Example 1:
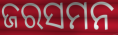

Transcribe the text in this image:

ଜରସମନ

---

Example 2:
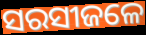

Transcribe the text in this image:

ସରସୀଜଳେ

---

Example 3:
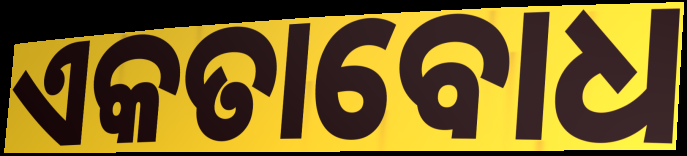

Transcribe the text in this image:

ଏକତାବୋଧ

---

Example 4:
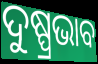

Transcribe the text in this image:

ଦୁଷ୍ପ୍ରଭାବ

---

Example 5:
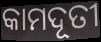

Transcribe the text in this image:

କାମଦୂତୀ